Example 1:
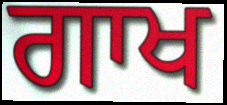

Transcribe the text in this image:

ਗਾਖ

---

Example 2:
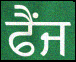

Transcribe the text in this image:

ਫੈਂਜ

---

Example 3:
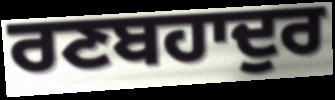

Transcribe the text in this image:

ਰਣਬਹਾਦੁਰ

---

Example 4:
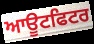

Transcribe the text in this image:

ਆਊਟਫਿਟਰ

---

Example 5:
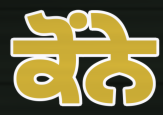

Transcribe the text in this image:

ਕੋਂਨੇ